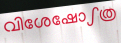
വിശേഷോഽത്ര